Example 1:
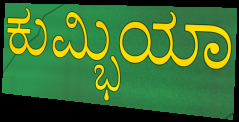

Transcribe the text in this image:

ಕುಮ್ಭಿಯಾ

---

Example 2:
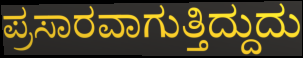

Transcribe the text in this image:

ಪ್ರಸಾರವಾಗುತ್ತಿದ್ದುದು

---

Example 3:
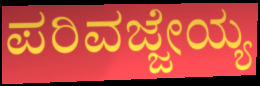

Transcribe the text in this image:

ಪರಿವಜ್ಜೇಯ್ಯ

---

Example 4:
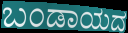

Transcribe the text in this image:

ಬಂಡಾಯದ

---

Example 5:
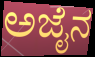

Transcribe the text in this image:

ಅಜೈನ